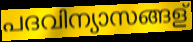
പദവിന്യാസങ്ങള്